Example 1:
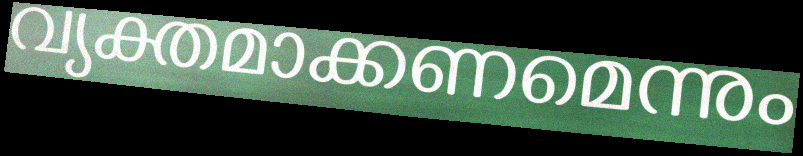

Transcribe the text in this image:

വ്യക്തമാക്കണമെന്നും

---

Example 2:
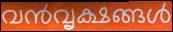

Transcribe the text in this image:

വൻവൃക്ഷങ്ങൾ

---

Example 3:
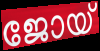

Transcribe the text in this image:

ജോയ്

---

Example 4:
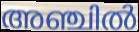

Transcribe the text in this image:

അഞ്ചിൽ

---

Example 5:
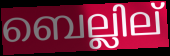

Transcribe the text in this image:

ബെല്ലില്